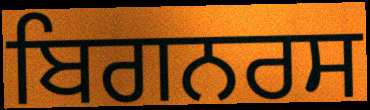
ਬਿਗਨਰਸ